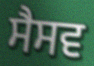
ਸੈਸਵ